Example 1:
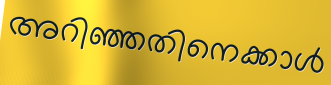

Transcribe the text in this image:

അറിഞ്ഞതിനെക്കാൾ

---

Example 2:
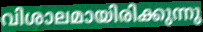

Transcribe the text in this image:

വിശാലമായിരിക്കുന്നു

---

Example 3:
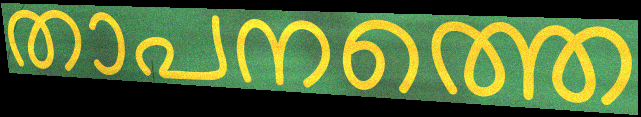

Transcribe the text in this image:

താപനത്തെ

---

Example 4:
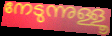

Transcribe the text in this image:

നേടുന്നുള്ളൂ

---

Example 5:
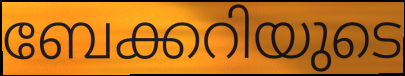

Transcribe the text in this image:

ബേക്കറിയുടെ